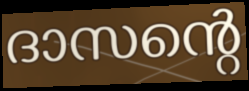
ദാസന്റെ